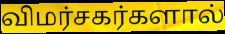
விமர்சகர்களால்